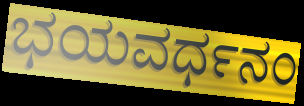
ಭಯವರ್ಧನಂ